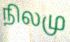
நிலமு